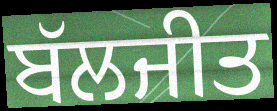
ਬੱਲਜੀਤ